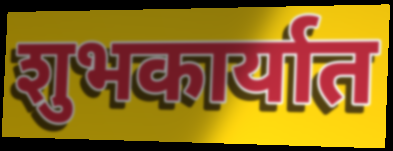
शुभकार्यात